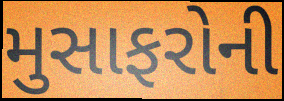
મુસાફરોની